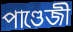
পাণ্ডেজী